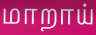
மாறாய்